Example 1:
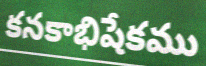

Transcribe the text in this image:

కనకాభిషేకము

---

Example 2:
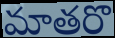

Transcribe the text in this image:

మాతరొ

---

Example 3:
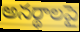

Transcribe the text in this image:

అనర్థాలపై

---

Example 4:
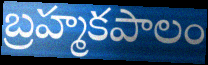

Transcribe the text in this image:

బ్రహ్మకపాలం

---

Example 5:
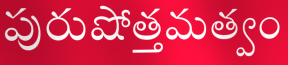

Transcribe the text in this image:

పురుషోత్తమత్వం